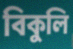
বিকুলি